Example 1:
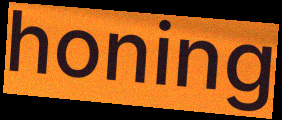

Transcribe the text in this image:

honing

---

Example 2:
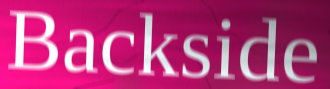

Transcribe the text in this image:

Backside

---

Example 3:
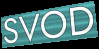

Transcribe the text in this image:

SVOD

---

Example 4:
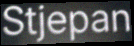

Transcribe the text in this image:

Stjepan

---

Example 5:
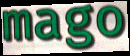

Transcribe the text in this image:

mago